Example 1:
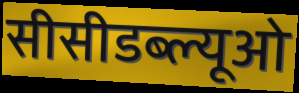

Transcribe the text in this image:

सीसीडब्ल्यूओ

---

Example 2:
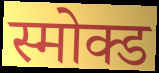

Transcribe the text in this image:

स्मोक्ड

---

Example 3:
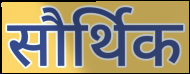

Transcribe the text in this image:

सौर्थिक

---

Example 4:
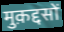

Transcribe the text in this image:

मुक़द्दसों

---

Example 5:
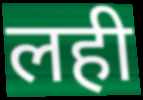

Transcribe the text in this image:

लही